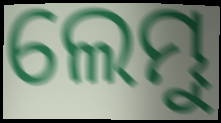
ଲେମ୍ଭୁ